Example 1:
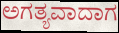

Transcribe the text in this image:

ಅಗತ್ಯವಾದಾಗ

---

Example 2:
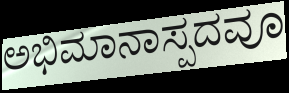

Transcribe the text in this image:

ಅಭಿಮಾನಾಸ್ಪದವೂ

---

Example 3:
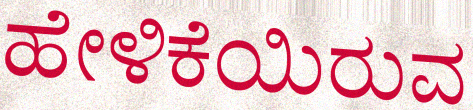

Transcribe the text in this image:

ಹೇಳಿಕೆಯಿರುವ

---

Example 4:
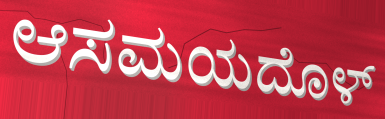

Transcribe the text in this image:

ಆಸಮಯದೊಳ್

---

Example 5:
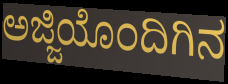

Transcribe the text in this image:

ಅಜ್ಜಿಯೊಂದಿಗಿನ